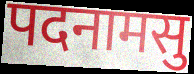
पदनामसु